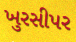
ખુરસીપર